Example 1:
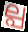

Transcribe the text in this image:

ല്പ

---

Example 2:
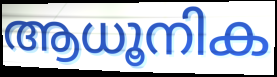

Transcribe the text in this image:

ആധൂനിക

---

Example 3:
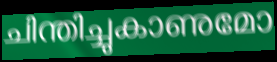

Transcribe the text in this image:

ചിന്തിച്ചുകാണുമോ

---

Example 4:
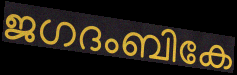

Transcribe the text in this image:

ജഗദംബികേ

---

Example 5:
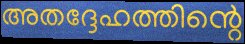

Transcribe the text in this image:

അതദ്ദേഹത്തിന്റെ